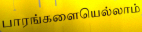
பாரங்களையெல்லாம்